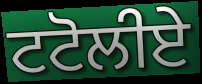
ਟਟੋਲੀਏ